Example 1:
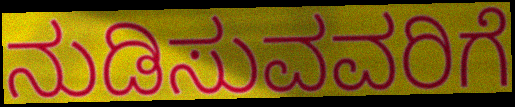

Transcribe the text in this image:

ನುಡಿಸುವವರಿಗೆ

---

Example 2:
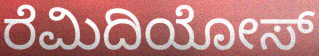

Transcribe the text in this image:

ರೆಮಿದಿಯೋಸ್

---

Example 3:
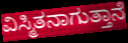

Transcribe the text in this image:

ವಿಸ್ಮಿತನಾಗುತ್ತಾನೆ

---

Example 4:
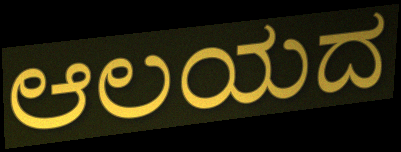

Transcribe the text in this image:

ಆಲಯದ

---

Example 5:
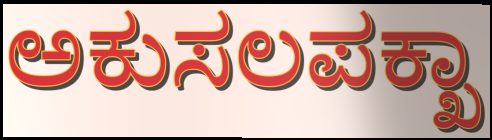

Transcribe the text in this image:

ಅಕುಸಲಪಕ್ಖಾ